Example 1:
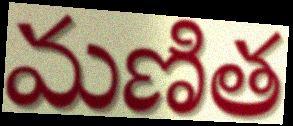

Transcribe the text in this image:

మణిత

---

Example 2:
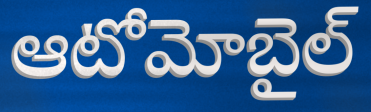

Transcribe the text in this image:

ఆటోమోబైల్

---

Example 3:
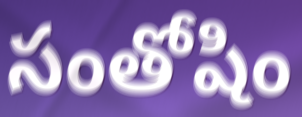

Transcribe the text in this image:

సంతోషిం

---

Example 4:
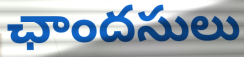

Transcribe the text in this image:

ఛాందసులు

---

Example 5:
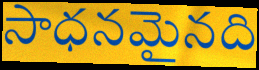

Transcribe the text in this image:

సాధనమైనది